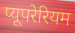
प्यूपरेरियम